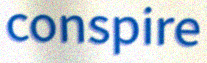
conspire